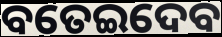
ବତେଇଦେବ